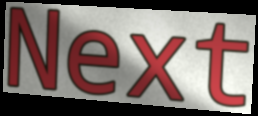
Next